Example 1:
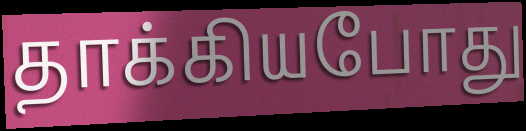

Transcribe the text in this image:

தாக்கியபோது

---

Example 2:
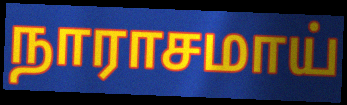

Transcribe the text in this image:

நாராசமாய்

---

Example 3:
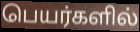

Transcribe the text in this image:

பெயர்களில்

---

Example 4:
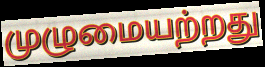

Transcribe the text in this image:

முழுமையற்றது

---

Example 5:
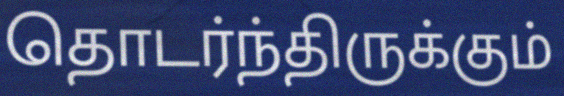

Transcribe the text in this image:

தொடர்ந்திருக்கும்